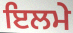
ਇਲਮੇ